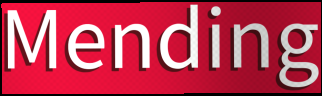
Mending